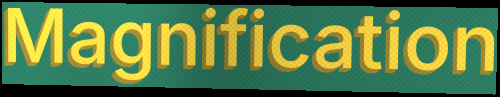
Magnification